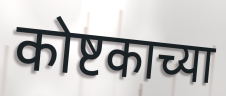
कोष्टकाच्या